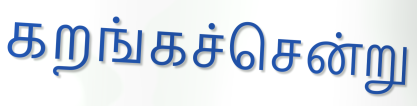
கறங்கச்சென்று